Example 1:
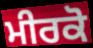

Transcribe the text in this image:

ਮੀਰਕੋ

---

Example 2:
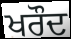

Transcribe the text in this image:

ਖਰੌਦ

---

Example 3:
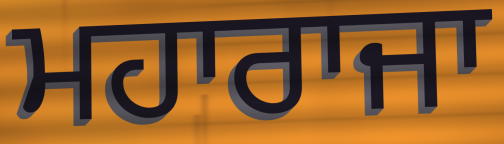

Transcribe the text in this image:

ਮਹਾਰਾਜਾ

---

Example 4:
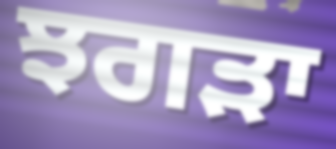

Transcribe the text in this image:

ਝਗੜਾ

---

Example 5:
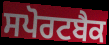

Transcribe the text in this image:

ਸਪੋਰਟਬੈਕ